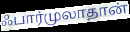
ஃபார்முலாதான்